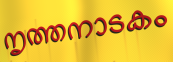
നൃത്തനാടകം